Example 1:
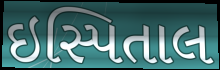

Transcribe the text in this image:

ઇસ્પિતાલ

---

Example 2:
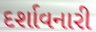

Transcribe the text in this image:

દર્શાવનારી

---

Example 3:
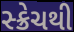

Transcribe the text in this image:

સ્ક્રેચથી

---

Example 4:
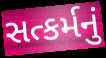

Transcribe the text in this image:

સત્કર્મનું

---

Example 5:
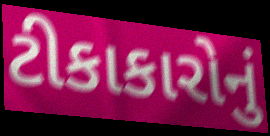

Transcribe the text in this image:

ટીકાકારોનું